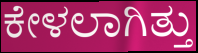
ಕೇಳಲಾಗಿತ್ತು